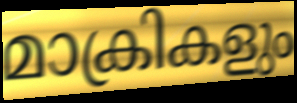
മാക്രികളും